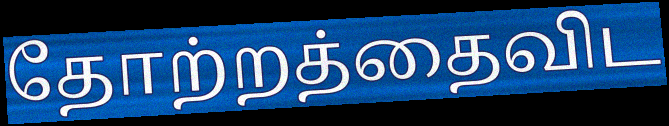
தோற்றத்தைவிட